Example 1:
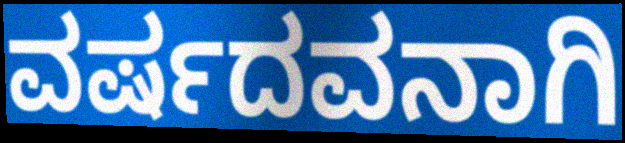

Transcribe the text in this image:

ವರ್ಷದವನಾಗಿ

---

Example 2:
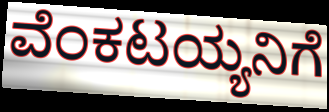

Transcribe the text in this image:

ವೆಂಕಟಯ್ಯನಿಗೆ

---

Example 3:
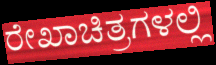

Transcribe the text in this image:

ರೇಖಾಚಿತ್ರಗಳಲ್ಲಿ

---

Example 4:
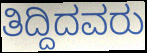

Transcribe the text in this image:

ತಿದ್ದಿದವರು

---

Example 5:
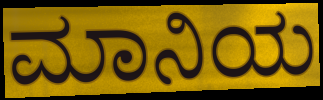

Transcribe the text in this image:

ಮಾನಿಯ